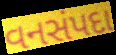
વનસંપદા